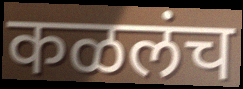
कळलंच